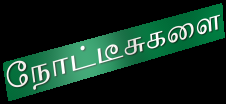
நோட்டீசுகளை